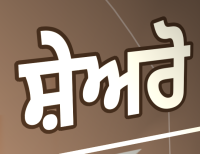
ਸ਼ੇਅਰੋ